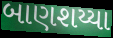
બાણશય્યા